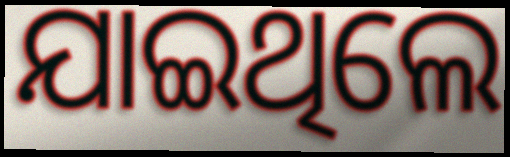
ଯାଇଥିଲେ